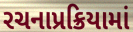
રચનાપ્રક્રિયામાં